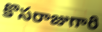
కొసరాజుగారి